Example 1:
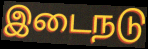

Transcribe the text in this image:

இடைநடு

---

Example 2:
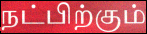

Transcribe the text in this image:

நட்பிற்கும்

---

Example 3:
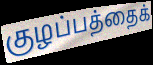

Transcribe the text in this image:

குழப்பத்தைக்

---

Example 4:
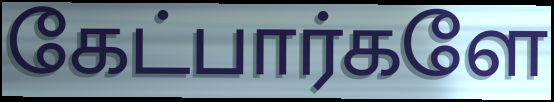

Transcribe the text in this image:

கேட்பார்களே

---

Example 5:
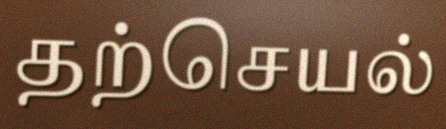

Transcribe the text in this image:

தற்செயல்